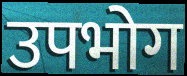
उपभोग